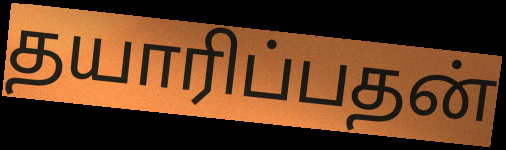
தயாரிப்பதன்